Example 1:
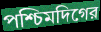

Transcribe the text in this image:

পশ্চিমদিগের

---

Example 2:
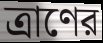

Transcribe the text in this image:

ত্রাণের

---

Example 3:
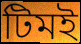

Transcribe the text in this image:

টিমই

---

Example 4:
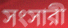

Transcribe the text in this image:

সংসারী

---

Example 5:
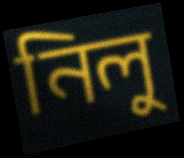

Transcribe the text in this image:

নিলু